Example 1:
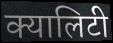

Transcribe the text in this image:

क्यालिटी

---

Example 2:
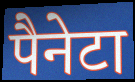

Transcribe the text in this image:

पैनेटा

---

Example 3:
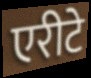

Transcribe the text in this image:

एरीटे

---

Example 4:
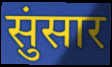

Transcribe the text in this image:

सुंसार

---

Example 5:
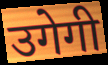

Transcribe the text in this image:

उगेगी